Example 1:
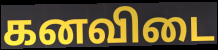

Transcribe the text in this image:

கனவிடை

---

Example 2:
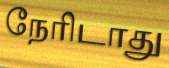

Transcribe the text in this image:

நேரிடாது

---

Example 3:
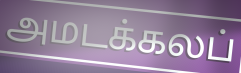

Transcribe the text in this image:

அமடக்கலப்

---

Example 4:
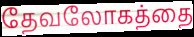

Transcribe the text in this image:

தேவலோகத்தை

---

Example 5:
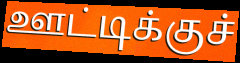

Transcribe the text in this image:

ஊட்டிக்குச்